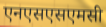
एनएसएसएमसी